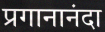
प्रगानानंदा